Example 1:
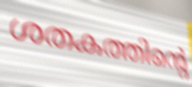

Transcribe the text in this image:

ശതകത്തിന്റെ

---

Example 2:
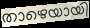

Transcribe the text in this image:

താഴെയായി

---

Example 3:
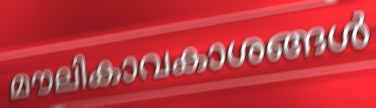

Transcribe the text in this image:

മൗലികാവകാശങ്ങൾ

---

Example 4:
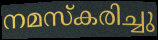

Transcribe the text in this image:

നമസ്കരിച്ചു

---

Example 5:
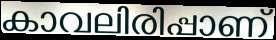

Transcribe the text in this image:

കാവലിരിപ്പാണ്